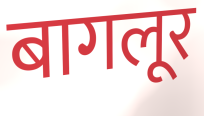
बागलूर